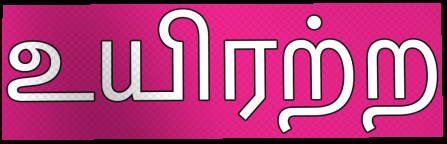
உயிரற்ற